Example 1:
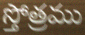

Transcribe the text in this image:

స్తోత్రము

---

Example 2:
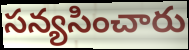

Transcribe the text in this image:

సన్యసించారు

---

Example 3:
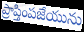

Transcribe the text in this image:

ప్రాప్తింపజేయును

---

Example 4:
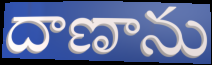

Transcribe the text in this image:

దాణాను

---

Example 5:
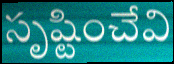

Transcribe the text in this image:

సృష్టించేవి